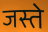
जस्ते